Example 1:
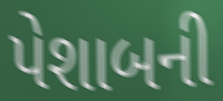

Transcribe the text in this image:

પેશાબની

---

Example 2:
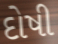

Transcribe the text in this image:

દોષી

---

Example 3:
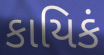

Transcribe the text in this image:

કાયિકં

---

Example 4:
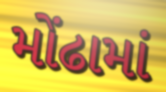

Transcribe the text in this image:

મોંઢામાં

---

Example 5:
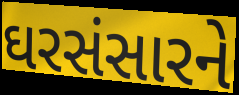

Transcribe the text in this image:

ઘરસંસારને